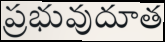
ప్రభువుదూత